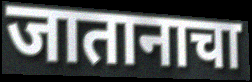
जातानाचा